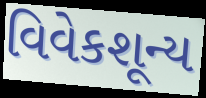
વિવેકશૂન્ય